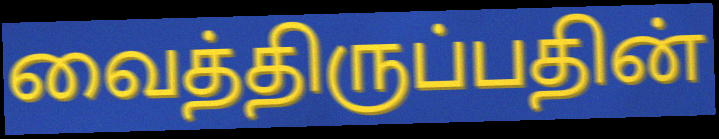
வைத்திருப்பதின்